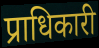
प्राधिकारी